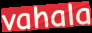
vahala